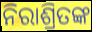
ନିରାଶ୍ରିତଙ୍କ